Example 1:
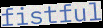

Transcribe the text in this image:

fistful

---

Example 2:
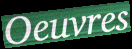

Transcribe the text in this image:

Oeuvres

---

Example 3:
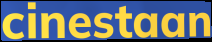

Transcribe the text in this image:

cinestaan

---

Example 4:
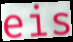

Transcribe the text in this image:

eis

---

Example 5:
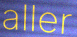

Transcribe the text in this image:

aller